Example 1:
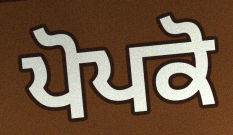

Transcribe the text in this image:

ਪੋਪਕੋ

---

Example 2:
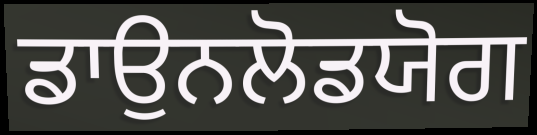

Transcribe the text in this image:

ਡਾਉਨਲੋਡਯੋਗ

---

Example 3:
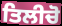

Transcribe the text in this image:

ਤਿਲੀਚੋ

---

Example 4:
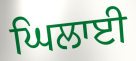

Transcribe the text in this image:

ਘਿਲਾਈ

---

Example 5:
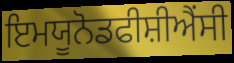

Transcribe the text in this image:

ਇਮਯੂਨੋਡਫੀਸ਼ੀਐਂਸੀ